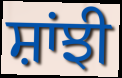
ਸ਼ਾਂਝੀ